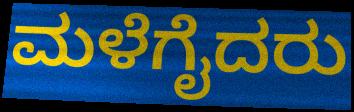
ಮಳೆಗೈದರು